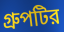
গ্রুপটির